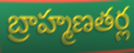
బ్రాహ్మణతర్ల